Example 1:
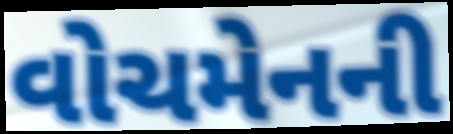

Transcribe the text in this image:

વોચમેનની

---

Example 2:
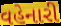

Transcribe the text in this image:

વહેનારી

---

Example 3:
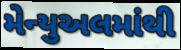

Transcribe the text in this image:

મેન્યુઅલમાંથી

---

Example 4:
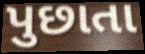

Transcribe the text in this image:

પુછાતા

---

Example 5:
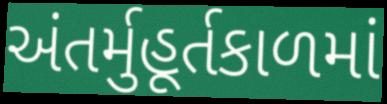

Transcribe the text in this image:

અંતર્મુહૂર્તકાળમાં